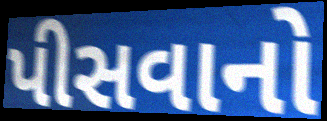
પીસવાનો